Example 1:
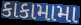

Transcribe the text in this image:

કાકામામા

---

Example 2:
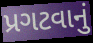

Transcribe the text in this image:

પ્રગટવાનું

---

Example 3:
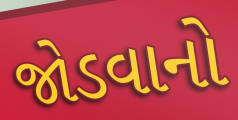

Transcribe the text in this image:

જોડવાનો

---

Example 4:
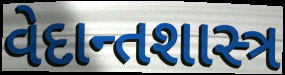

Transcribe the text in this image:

વેદાન્તશાસ્ત્ર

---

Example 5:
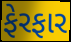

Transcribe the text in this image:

ફેરફાર